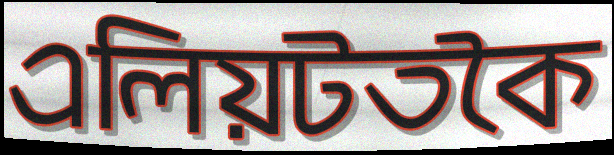
এলিয়টতকৈ